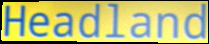
Headland